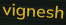
vignesh